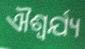
ଐଶ୍ଵର୍ଯ୍ୟ